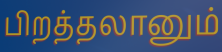
பிறத்தலானும்